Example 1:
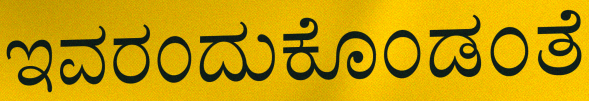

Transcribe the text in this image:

ಇವರಂದುಕೊಂಡಂತೆ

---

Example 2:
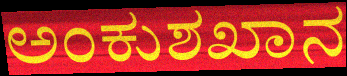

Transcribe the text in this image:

ಅಂಕುಶಖಾನ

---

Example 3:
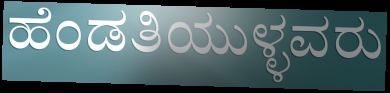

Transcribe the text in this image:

ಹೆಂಡತಿಯುಳ್ಳವರು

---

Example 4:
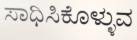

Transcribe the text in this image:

ಸಾಧಿಸಿಕೊಳ್ಳುವ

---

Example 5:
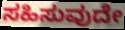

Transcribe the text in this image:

ಸಹಿಸುವುದೇ